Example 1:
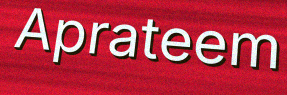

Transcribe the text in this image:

Aprateem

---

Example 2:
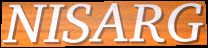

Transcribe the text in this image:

NISARG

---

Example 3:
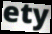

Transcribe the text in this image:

ety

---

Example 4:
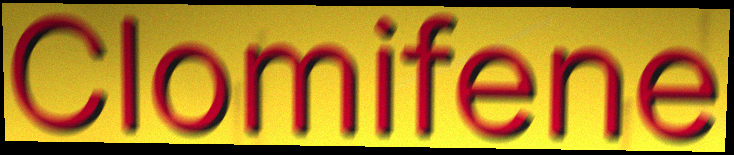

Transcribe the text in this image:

Clomifene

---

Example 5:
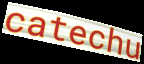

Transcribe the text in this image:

catechu